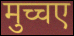
मुच्चए